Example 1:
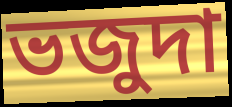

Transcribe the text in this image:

ভজুদা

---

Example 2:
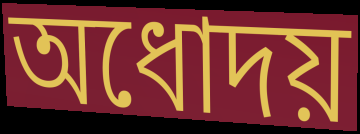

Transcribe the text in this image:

অধোদয়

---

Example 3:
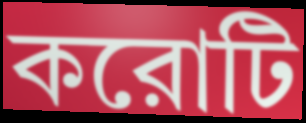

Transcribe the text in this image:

করোটি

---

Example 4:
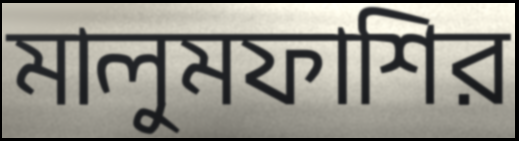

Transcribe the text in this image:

মালুমফাশির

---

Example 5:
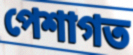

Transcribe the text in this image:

পেশাগত